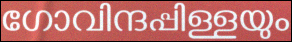
ഗോവിന്ദപ്പിള്ളയും